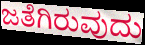
ಜತೆಗಿರುವುದು